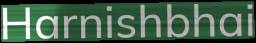
Harnishbhai